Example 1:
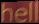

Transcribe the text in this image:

hell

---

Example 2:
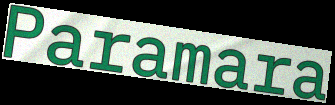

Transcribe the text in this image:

Paramara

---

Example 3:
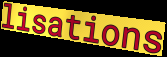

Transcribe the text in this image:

lisations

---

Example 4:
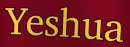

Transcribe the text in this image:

Yeshua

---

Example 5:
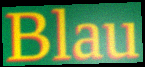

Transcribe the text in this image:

Blau